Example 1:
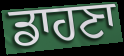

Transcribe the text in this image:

ਡਾਹਣਾ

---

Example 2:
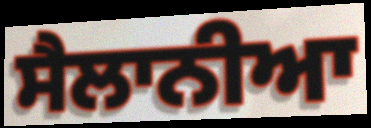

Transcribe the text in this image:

ਸੈਲਾਨੀਆ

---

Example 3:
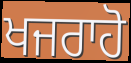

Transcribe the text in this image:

ਖਜਰਾਹੋ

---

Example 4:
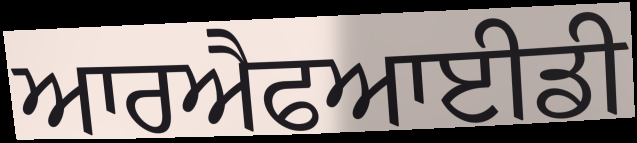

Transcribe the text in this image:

ਆਰਐਫਆਈਡੀ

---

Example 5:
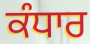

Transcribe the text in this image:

ਕੰਧਾਰ